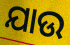
ଯାଉ